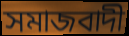
সমাজবাদী